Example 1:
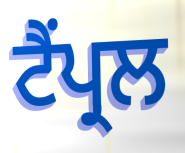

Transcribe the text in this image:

ਟੈਂਪ੍ਰਲ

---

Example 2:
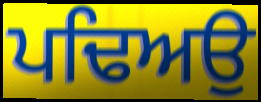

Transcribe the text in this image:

ਪਢਿਅਉ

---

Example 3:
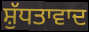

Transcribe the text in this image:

ਸ਼ੁੱਧਤਾਵਾਦ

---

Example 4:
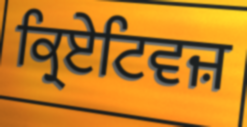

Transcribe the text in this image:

ਕ੍ਰਿਏਟਿਵਜ਼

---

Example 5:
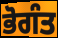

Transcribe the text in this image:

ਭੋਗੰਤ